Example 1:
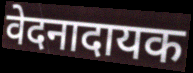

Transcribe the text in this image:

वेदनादायक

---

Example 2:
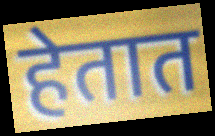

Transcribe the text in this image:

हेतात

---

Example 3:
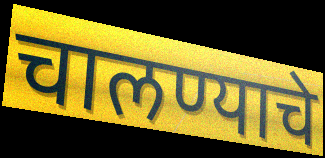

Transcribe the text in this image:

चालण्याचे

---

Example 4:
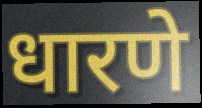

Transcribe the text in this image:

धारणे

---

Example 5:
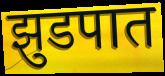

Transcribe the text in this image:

झुडपात